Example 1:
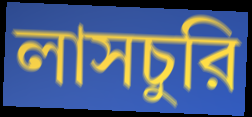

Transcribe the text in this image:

লাসচুরি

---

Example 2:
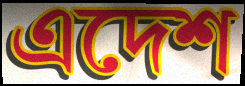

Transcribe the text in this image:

এদেশ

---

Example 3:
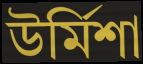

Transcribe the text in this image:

উর্মিশা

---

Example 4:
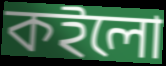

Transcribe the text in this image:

কইলো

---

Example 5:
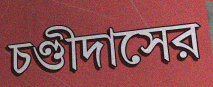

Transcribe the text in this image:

চণ্ডীদাসের